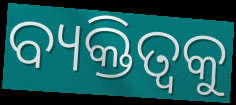
ବ୍ୟକ୍ତିତ୍ୱକୁ